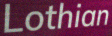
Lothian